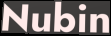
Nubin